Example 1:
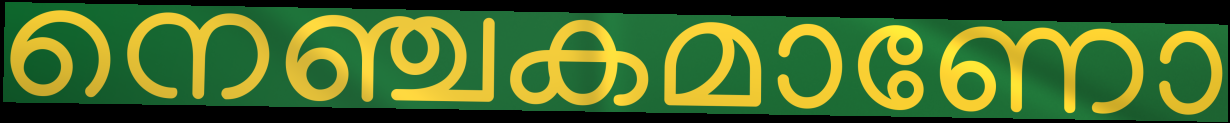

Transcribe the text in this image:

നെഞ്ചകമാണോ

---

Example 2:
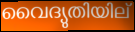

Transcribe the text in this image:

വൈദ്യുതിയില്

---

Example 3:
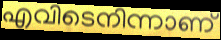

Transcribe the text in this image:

എവിടെനിന്നാണ്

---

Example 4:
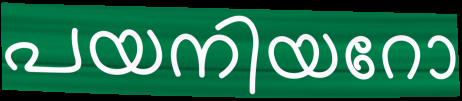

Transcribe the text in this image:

പയനിയറോ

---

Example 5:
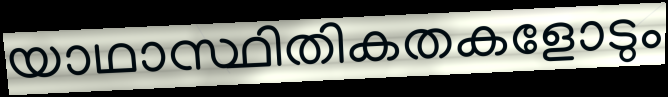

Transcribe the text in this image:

യാഥാസ്ഥിതികതകളോടും